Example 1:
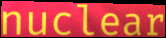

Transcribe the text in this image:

nuclear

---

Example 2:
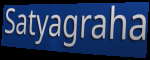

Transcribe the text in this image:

Satyagraha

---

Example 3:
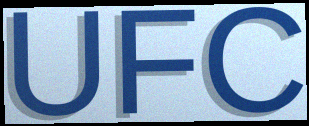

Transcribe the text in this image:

UFC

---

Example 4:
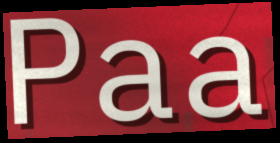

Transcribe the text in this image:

Paa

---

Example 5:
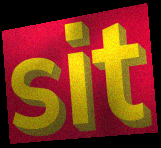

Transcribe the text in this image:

sit